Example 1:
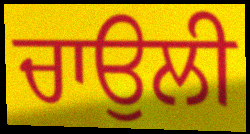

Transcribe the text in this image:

ਚਾਉਲੀ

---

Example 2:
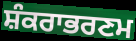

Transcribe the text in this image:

ਸ਼ੰਕਰਾਭਰਣਮ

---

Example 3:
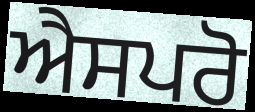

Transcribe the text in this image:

ਐਸਪਰੋ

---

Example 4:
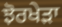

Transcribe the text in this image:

ਝੋਰਖੇੜਾ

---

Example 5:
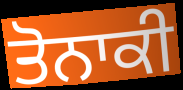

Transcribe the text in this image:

ਤੋਨਾਕੀ